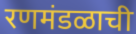
रणमंडळाची